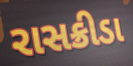
રાસક્રીડા